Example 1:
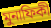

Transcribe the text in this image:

মুনাফিকী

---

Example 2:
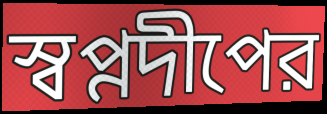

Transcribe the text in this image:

স্বপ্নদীপের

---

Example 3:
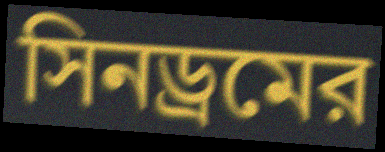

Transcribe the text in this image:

সিনড্রমের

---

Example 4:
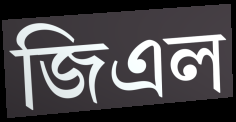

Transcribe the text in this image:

জিএল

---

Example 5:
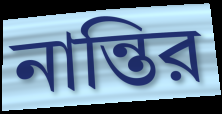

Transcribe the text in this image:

নান্তির